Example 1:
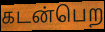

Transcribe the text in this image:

கடன்பெற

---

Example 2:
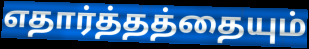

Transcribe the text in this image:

எதார்த்தத்தையும்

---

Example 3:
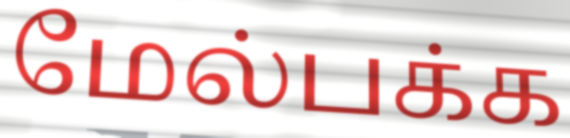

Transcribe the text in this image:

மேல்பக்க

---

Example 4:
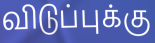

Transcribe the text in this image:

விடுப்புக்கு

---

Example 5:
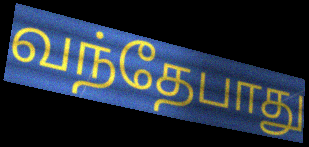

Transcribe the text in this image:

வந்தேபாது